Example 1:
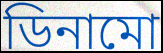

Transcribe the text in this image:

ডিনামো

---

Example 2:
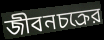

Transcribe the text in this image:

জীবনচক্রের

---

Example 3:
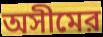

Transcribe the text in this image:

অসীমের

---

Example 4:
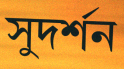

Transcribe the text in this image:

সুদর্শন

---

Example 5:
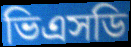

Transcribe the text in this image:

ভিএসডি